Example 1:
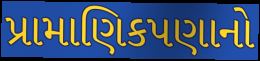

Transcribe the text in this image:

પ્રામાણિકપણાનો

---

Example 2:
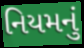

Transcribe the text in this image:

નિયમનું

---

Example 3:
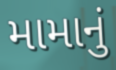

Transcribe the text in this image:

મામાનું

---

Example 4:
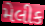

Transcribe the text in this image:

મેલીક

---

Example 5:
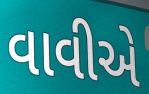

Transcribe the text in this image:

વાવીએ